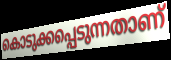
കൊടുക്കപ്പെടുന്നതാണ്